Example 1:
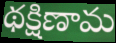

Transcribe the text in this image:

థక్షిణామ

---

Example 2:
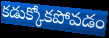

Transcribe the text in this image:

కడుక్కోకపోవడం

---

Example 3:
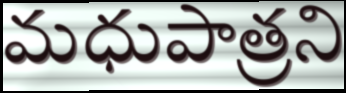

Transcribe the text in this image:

మధుపాత్రని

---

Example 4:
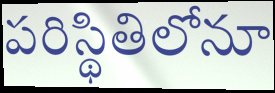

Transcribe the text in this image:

పరిస్థితిలోనూ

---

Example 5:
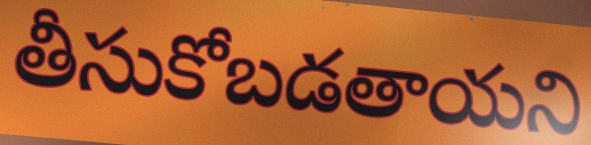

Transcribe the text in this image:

తీసుకోబడతాయని